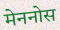
मेननोस